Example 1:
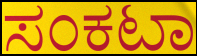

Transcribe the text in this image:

ಸಂಕಟಾ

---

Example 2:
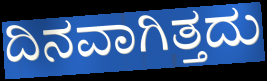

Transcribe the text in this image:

ದಿನವಾಗಿತ್ತದು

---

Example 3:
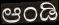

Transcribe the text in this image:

ಆಂಡಿ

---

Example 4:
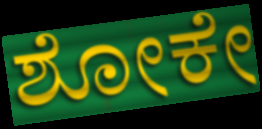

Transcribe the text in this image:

ಶೋಕೇ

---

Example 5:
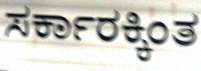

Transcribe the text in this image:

ಸರ್ಕಾರಕ್ಕಿಂತ